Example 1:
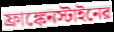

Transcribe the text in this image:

ফ্রাঙ্কেনস্টাইনের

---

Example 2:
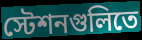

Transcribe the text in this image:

স্টেশনগুলিতে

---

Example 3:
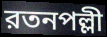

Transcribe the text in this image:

রতনপল্লী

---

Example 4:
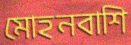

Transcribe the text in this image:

মোহনবাশি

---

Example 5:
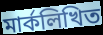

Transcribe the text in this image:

মার্কলিখিত